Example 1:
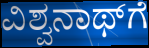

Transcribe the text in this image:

ವಿಶ್ವನಾಥ್‌ಗೆ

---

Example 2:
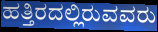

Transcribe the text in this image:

ಹತ್ತಿರದಲ್ಲಿರುವವರು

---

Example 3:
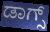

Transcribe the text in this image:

ಡಾಗ್ಸ್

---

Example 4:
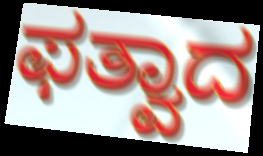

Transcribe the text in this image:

ಫತ್ವಾದ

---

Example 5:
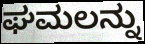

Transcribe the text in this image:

ಘಮಲನ್ನು